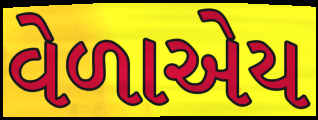
વેળાએય